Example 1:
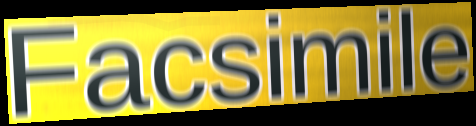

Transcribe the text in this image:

Facsimile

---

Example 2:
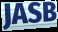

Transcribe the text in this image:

JASB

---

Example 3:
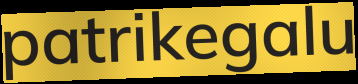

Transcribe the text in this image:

patrikegalu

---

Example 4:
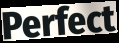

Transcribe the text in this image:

Perfect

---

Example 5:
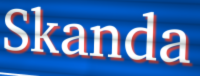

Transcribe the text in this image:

Skanda